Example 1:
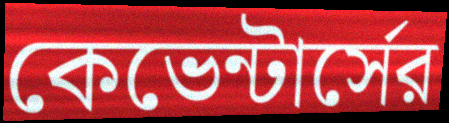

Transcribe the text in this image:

কেভেন্টার্সের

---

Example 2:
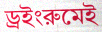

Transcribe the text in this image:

ড্রইংরুমেই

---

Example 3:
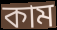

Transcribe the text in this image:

কাম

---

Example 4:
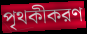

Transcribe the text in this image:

পৃথকীকরণ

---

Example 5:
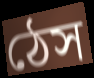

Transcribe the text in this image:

ঠেস